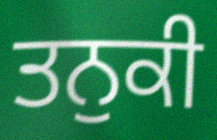
ਤਨੁਕੀ